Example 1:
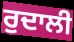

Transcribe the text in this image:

ਰੁਦਾਲੀ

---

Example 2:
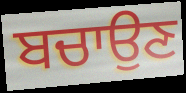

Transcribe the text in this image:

ਬਚਾਉਣ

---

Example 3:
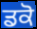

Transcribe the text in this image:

ਡਕੋ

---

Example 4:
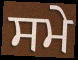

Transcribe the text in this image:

ਸਮੇ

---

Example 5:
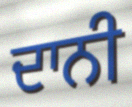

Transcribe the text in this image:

ਦਾਨੀ